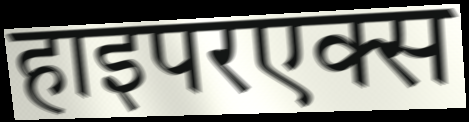
हाइपरएक्स